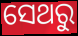
ସେଥରୁ